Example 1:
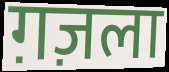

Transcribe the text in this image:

ग़ज़ला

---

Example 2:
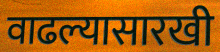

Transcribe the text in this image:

वाढल्यासारखी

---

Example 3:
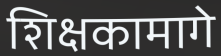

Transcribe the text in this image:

शिक्षकामागे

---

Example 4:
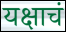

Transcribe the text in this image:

यक्षाचं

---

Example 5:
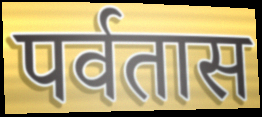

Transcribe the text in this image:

पर्वतास